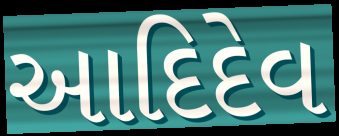
આદિદેવ